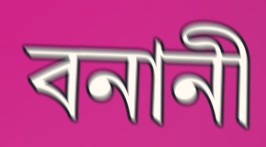
বনানী